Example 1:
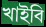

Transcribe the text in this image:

খাইবি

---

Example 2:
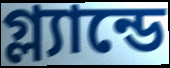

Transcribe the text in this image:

গ্ল্যান্ডে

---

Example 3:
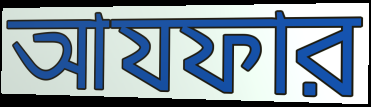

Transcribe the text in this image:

আযফার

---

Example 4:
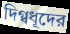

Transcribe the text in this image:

দিগ্বধূদের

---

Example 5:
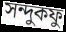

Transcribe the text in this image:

সন্দুকফু